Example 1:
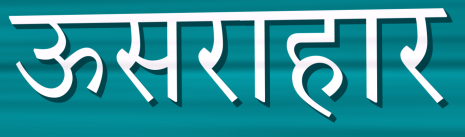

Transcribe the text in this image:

ऊसराहार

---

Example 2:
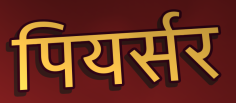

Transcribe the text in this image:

पियर्सर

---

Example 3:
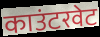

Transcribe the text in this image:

काउंटरवेट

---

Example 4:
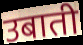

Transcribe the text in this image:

उबाती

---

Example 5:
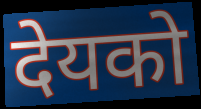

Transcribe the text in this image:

देयको